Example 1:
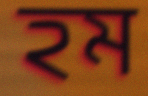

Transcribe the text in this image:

হম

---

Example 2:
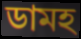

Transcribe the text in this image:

ডামহ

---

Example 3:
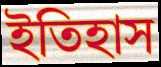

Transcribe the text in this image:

ইতিহাস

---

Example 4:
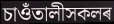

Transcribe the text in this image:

চাওঁতালীসকলৰ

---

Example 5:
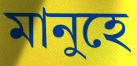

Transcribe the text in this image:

মানুহে